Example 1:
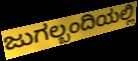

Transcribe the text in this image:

ಜುಗಲ್ಬಂದಿಯಲ್ಲಿ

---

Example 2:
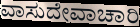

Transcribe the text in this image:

ವಾಸುದೇವಾಚಾರಿ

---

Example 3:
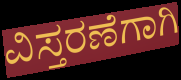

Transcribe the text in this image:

ವಿಸ್ತರಣೆಗಾಗಿ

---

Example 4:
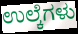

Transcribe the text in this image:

ಉಲ್ಕೆಗಳು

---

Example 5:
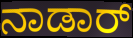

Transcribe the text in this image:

ನಾಡಾರ್